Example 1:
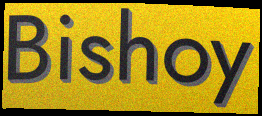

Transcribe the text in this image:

Bishoy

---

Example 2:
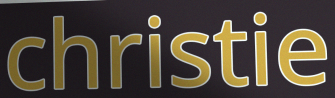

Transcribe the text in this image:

christie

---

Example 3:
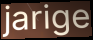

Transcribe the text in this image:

jarige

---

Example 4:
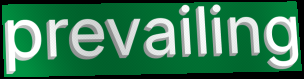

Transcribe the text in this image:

prevailing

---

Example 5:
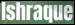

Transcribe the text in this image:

Ishraque